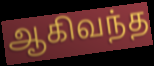
ஆகிவந்த